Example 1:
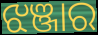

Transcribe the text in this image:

ଝଞ୍ଜାର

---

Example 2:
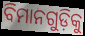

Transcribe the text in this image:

ବିମାନଗୁଡ଼ିକୁ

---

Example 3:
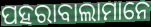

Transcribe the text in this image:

ପହରାବାଲାମାନେ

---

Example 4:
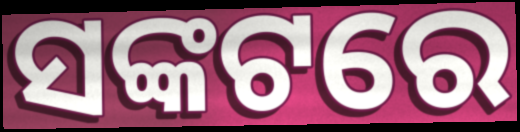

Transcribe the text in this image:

ସଙ୍କଟରେ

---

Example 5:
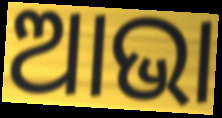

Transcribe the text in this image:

ଆଭା